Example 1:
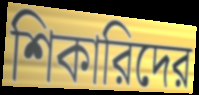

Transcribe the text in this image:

শিকারিদের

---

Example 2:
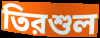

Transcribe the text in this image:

তিরশুল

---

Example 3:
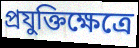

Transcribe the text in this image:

প্রযুক্তিক্ষেত্রে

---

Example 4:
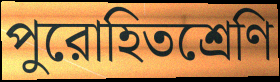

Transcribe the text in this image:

পুরোহিতশ্রেণি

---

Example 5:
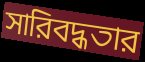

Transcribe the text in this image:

সারিবদ্ধতার